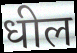
धील